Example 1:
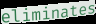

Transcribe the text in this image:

eliminates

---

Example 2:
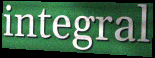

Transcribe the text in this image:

integral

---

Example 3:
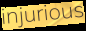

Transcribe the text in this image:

injurious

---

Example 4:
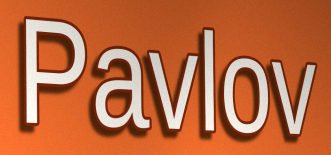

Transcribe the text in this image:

Pavlov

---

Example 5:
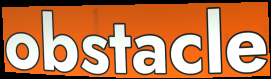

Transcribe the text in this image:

obstacle